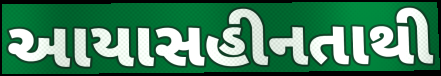
આયાસહીનતાથી